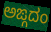
ಅಙ್ಗದಂ